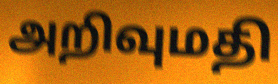
அறிவுமதி